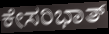
ಕೇಸರಿಭಾತ್